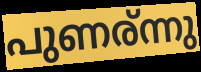
പുണര്ന്നു